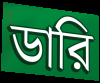
ডারি